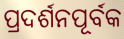
ପ୍ରଦର୍ଶନପୂର୍ବକ